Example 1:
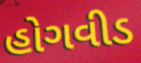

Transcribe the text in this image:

હોગવીડ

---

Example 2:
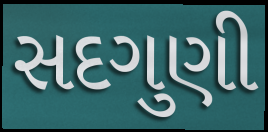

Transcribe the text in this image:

સદગુણી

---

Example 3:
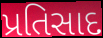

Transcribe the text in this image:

પ્રતિસાદ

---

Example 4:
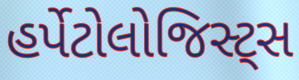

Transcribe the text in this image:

હર્પેટોલોજિસ્ટ્સ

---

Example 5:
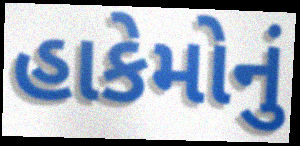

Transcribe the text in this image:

હાકેમોનું